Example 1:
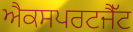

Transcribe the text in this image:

ਐਕਸਪਰਟਜੈੱਟ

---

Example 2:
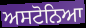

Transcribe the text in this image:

ਅਸਟੋਨਿਆ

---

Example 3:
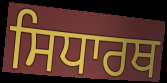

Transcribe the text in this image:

ਸਿਧਾਰਥ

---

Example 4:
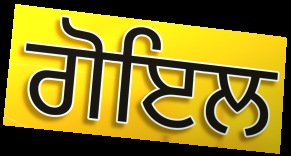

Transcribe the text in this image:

ਗੋਇਲ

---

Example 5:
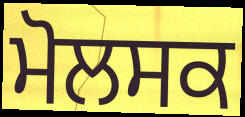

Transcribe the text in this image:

ਮੋਲਸਕ